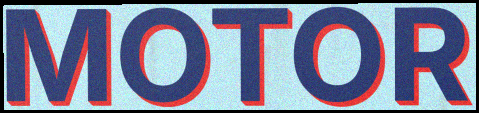
MOTOR